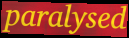
paralysed